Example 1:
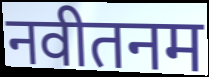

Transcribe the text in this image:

नवीतनम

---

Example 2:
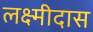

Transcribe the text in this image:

लक्ष्मीदास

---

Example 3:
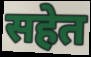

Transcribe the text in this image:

सहेत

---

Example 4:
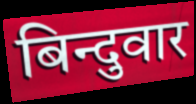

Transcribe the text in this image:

बिन्‍दुवार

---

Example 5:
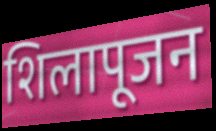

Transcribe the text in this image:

शिलापूजन